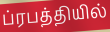
ப்ரபத்தியில்